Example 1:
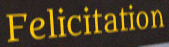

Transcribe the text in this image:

Felicitation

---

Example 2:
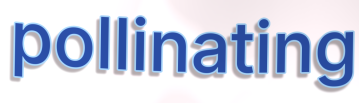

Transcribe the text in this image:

pollinating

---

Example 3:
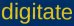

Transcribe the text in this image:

digitate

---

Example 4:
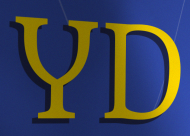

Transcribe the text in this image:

YD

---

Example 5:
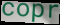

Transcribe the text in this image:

copr